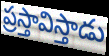
ప్రస్తావిస్తాడు